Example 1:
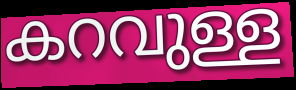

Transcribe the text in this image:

കറവുള്ള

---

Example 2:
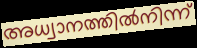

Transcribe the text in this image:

അധ്വാനത്തിൽനിന്ന്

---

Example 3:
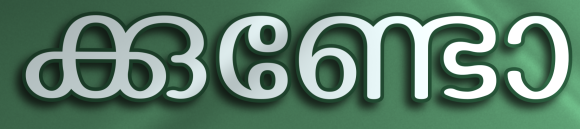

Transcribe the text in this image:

ക്കുണ്ടോ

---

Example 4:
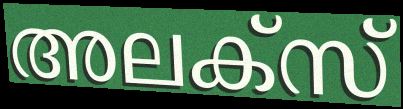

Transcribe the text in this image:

അലക്സ്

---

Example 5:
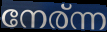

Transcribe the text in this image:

നേര്ന്ന